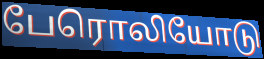
பேரொலியோடு